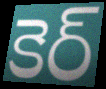
కెర్